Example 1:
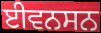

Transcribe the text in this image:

ਈਵਨਸਨ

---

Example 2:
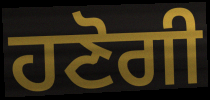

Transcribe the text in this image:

ਹਣੋਗੀ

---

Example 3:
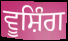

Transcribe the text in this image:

ਵੂਸ਼ਿੰਗ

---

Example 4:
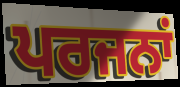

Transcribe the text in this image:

ਪਰਜਨਾਂ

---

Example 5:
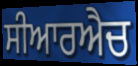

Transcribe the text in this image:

ਸੀਆਰਐਚ